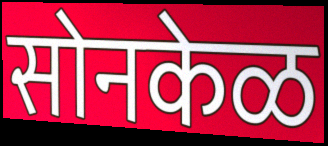
सोनकेळ